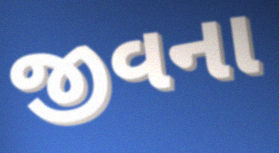
જીવના